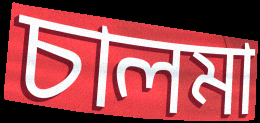
চালমা